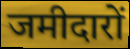
जमीदारों